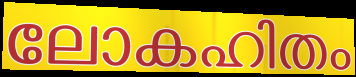
ലോകഹിതം